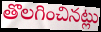
తొలగించినట్లు